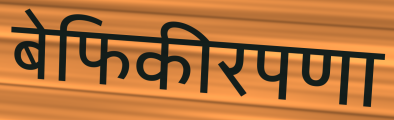
बेफिकीरपणा